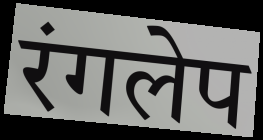
रंगलेप